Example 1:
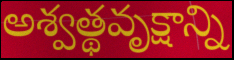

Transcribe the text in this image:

అశ్వత్థవృక్షాన్ని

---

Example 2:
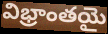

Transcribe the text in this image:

విభ్రాంతయై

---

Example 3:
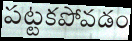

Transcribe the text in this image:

పట్టకపోవడం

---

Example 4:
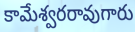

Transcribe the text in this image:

కామేశ్వరరావుగారు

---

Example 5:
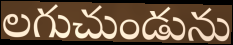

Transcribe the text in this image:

లగుచుండును